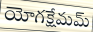
యోగక్షేమమ్